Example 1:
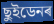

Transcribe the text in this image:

ছুইডেনৰ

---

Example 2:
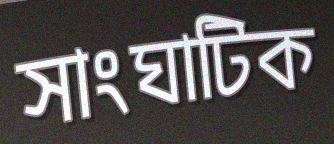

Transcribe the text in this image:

সাংঘাটিক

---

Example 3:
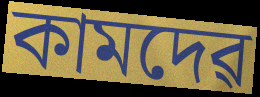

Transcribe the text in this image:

কামদেৱ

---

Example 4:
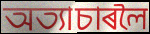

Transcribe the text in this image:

অত্যাচাৰলৈ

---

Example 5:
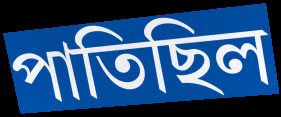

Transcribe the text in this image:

পাতিছিল